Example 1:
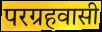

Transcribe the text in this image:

परग्रहवासी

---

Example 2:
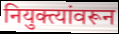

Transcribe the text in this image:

नियुक्त्यांवरून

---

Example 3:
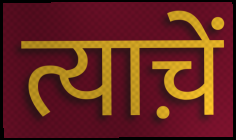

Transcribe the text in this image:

त्याच़ें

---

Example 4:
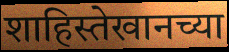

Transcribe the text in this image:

शाहिस्तेखानच्या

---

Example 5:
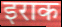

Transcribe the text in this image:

इराक